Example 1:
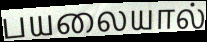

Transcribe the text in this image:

பயலையால்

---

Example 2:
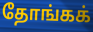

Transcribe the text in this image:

தோங்கக்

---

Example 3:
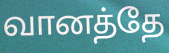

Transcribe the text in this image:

வானத்தே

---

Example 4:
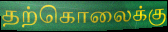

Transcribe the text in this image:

தற்கொலைக்கு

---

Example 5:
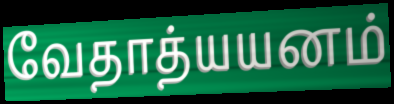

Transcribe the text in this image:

வேதாத்யயனம்